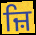
ਜ਼ਿ